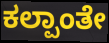
ಕಲ್ಪಾಂತೇ